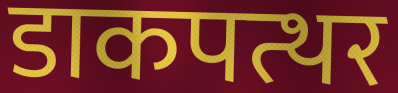
डाकपत्थर